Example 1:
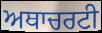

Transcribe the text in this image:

ਅਥਾਚਰਟੀ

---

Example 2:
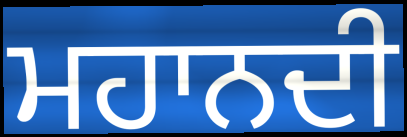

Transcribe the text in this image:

ਮਹਾਨਦੀ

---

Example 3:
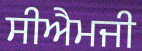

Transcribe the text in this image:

ਸੀਐਮਜੀ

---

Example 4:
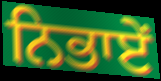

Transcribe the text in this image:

ਨਿਭਾਏਂ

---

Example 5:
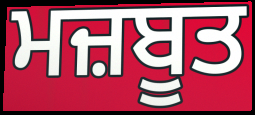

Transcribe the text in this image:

ਮਜ਼ਬੂਤ